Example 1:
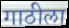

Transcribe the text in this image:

गाठीला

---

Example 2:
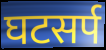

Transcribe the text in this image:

घटसर्प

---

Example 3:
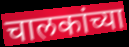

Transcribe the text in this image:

चालकांच्या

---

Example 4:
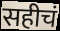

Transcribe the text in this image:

सहीचं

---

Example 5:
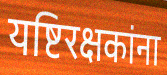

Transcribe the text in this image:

यष्टिरक्षकांना